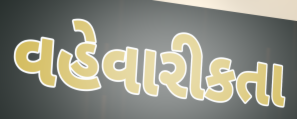
વહેવારીકતા